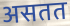
असतत